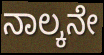
ನಾಲ್ಕನೇ